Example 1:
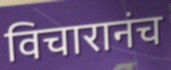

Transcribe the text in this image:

विचारानंच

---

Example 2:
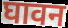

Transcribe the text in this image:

घावन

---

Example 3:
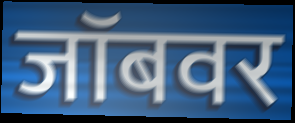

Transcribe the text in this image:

जॉबवर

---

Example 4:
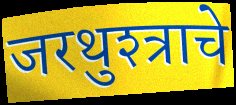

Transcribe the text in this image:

जरथुश्त्राचे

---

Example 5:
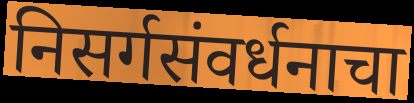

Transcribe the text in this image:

निसर्गसंवर्धनाचा